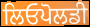
ਲਿਓਪੋਲਡੀ